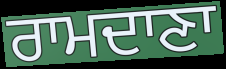
ਰਾਮਦਾਣਾ